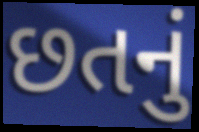
છતનું